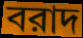
বরাদ